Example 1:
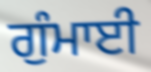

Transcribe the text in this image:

ਗੁੰਮਾਈ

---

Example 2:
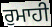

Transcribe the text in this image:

ਰੁਮਾਹੀ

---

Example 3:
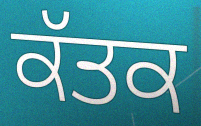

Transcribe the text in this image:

ਕੱਤਕ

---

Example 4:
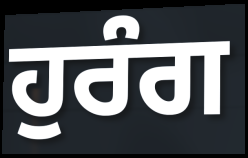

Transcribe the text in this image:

ਹੁਰੰਗ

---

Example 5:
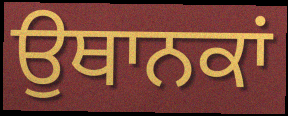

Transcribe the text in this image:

ਉਥਾਨਕਾਂ